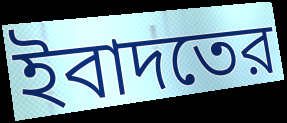
ইবাদতের